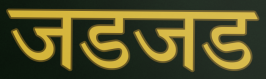
जडजड